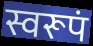
स्वरूपं